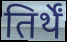
तिर्थें